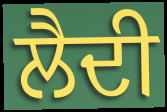
ਲੈਦੀ